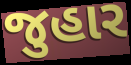
જુહાર